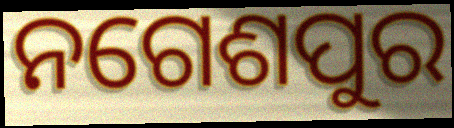
ନଗେଶପୁର